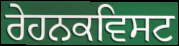
ਰੇਹਨਕਵਿਸਟ